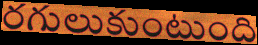
రగులుకుంటుంది